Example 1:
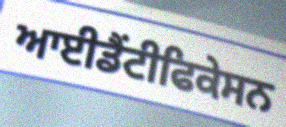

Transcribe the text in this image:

ਆਈਡੈਂਟੀਫਿਕੇਸਨ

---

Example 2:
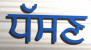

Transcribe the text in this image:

ਧੱਸਣ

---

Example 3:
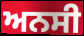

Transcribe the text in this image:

ਅਨਸੀ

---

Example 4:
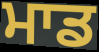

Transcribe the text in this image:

ਮਾਡ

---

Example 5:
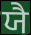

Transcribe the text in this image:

ਯੈ